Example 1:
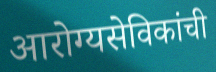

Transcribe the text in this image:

आरोग्यसेविकांची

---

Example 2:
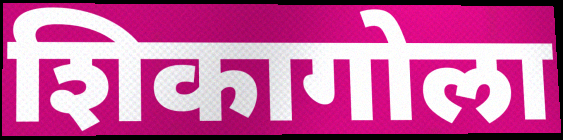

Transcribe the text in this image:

शिकागोला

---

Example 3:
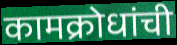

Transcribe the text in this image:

कामक्रोधांची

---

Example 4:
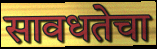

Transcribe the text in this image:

सावधतेचा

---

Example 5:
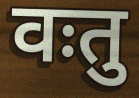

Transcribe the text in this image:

वःतु